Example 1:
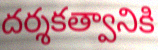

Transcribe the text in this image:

దర్శకత్వానికి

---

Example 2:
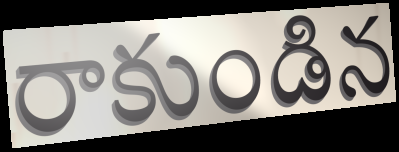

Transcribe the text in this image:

రాకుండిన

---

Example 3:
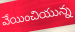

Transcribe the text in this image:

వేయించియున్న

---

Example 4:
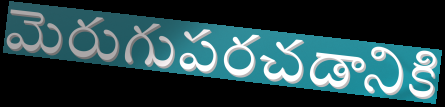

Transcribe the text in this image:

మెరుగుపరచడానికి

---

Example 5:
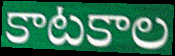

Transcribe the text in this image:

కాటకాల